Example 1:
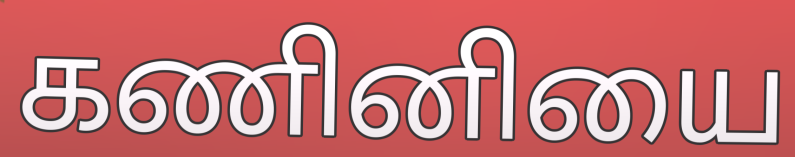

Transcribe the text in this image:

கணினியை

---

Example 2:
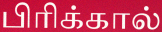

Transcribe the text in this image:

பிரிக்கால்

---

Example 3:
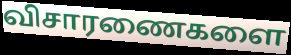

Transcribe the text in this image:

விசாரணைகளை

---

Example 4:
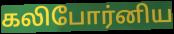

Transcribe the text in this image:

கலிபோர்னிய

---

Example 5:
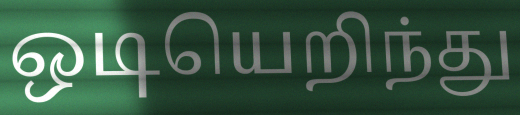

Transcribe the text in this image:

ஒடியெறிந்து